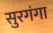
सुरगंगा